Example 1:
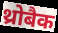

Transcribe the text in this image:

थ्रोबैक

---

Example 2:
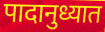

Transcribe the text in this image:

पादानुध्यात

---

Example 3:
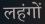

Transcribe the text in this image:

लहंगों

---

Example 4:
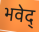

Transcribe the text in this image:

भवेद्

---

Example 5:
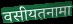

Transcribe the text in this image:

वसीयतनामा